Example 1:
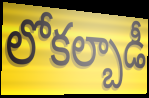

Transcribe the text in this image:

లోకల్బాడీ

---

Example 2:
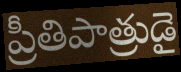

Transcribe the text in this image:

ప్రీతిపాత్రుడై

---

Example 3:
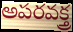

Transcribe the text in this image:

అపరవక్త్ర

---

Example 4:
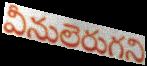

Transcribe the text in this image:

వీనులెరుగని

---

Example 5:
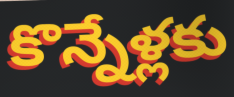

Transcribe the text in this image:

కొన్నేళ్లకు